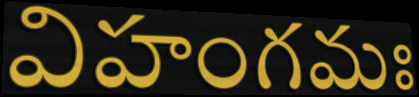
విహంగమః